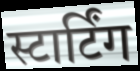
स्टार्टिंग